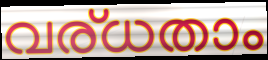
വര്ധതാം